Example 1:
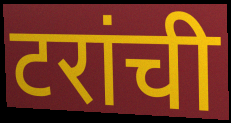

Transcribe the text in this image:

टरांची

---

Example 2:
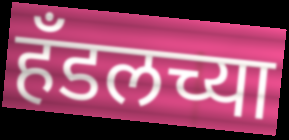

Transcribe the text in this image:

हँडलच्या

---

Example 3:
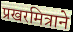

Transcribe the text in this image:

प्रखरमित्राने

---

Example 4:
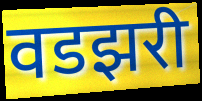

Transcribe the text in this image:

वडझरी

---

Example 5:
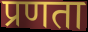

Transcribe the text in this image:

प्रणता